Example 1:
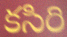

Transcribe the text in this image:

కసిరి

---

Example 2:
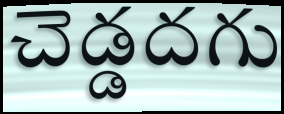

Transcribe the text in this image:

చెడ్డదగు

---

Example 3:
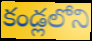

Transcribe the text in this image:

కండ్లలోని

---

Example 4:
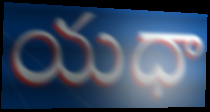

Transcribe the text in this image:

యధా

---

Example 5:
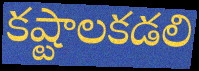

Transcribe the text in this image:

కష్టాలకడలి